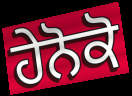
ਹੇਨੋਕੋ